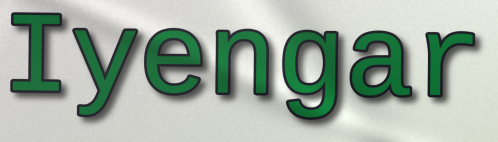
Iyengar